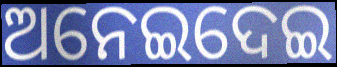
ଅନେଇଦେଇ